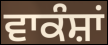
ਵਾਕੰਸ਼ਾਂ